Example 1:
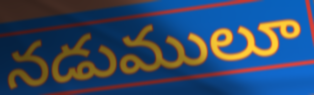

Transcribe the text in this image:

నడుములూ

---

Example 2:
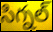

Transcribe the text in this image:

సిగ్నల్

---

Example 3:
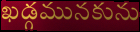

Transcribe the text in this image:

ఖడ్గమునకును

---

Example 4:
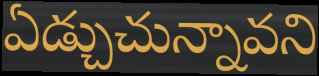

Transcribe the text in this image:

ఏడ్చుచున్నావని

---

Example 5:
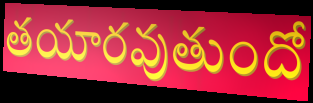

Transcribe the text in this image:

తయారవుతుందో